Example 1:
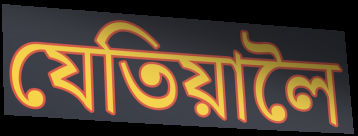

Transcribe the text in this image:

যেতিয়ালৈ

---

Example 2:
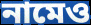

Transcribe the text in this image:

নামেও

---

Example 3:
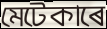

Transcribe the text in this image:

মেটেকাৰে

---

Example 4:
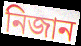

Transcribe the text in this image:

নিজান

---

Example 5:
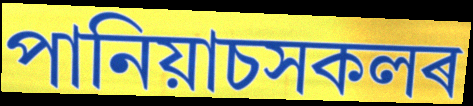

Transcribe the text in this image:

পানিয়াচসকলৰ